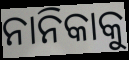
ନାନିକାକୁ